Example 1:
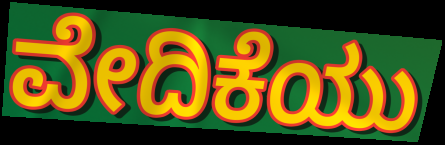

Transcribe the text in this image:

ವೇದಿಕೆಯು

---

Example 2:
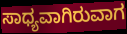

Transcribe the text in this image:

ಸಾಧ್ಯವಾಗಿರುವಾಗ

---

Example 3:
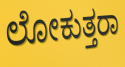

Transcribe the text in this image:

ಲೋಕುತ್ತರಾ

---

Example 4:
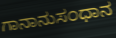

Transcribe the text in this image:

ಗಾನಾನುಸಂಧಾನ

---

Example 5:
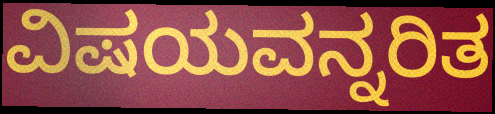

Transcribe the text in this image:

ವಿಷಯವನ್ನರಿತ